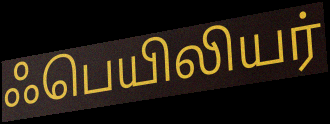
ஃபெயிலியர்